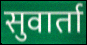
सुवार्ता